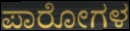
ಪಾರೋಗಳ